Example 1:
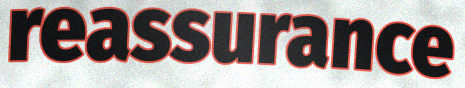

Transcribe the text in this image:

reassurance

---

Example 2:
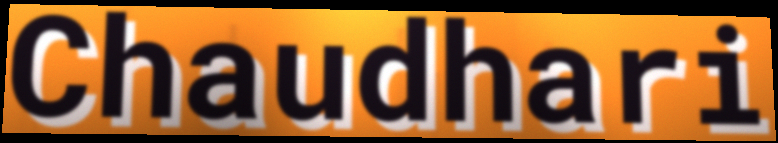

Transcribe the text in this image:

Chaudhari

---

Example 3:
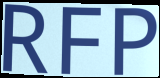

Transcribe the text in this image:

RFP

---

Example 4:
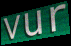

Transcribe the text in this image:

vur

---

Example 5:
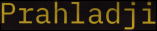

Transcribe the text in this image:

Prahladji